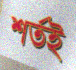
শর্তই